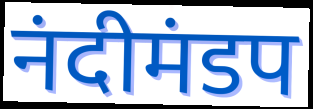
नंदीमंडप